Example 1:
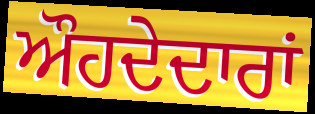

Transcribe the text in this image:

ਔਹਦੇਦਾਰਾਂ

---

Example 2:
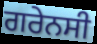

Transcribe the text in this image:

ਗਰੇਨਸੀ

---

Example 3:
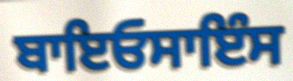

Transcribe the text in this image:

ਬਾਇਓਸਾਇੰਸ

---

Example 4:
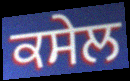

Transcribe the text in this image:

ਕਸੇਲ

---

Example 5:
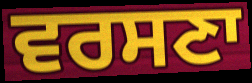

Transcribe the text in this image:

ਵਰਸਣਾ